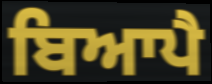
ਬਿਆਪੈ